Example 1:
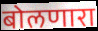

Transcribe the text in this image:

बोलणारा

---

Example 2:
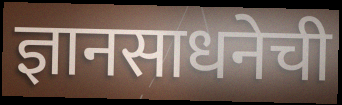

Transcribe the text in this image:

ज्ञानसाधनेची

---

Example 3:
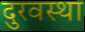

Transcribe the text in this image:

दुरवस्था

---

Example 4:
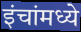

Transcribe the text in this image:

इंचांमध्ये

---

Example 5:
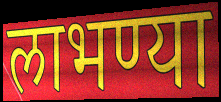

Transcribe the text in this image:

लाभण्या